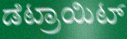
ಡೆಟ್ರಾಯಿಟ್